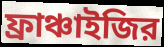
ফ্রাঞ্চাইজির